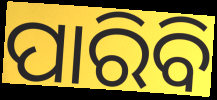
ପାରିବି